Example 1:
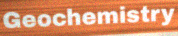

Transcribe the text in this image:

Geochemistry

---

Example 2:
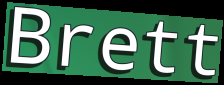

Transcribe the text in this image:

Brett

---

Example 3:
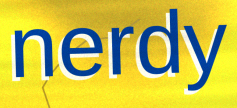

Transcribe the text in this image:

nerdy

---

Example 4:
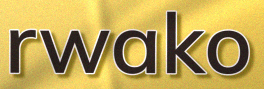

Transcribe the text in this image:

rwako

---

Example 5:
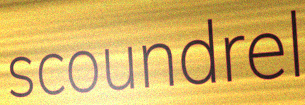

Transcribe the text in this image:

scoundrel